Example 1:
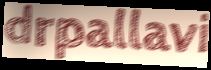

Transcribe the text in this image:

drpallavi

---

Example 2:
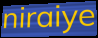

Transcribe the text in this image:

niraiye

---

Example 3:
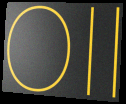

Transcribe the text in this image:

Oll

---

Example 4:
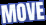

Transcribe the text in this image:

MOVE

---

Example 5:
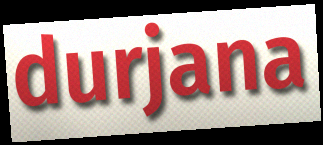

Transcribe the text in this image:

durjana